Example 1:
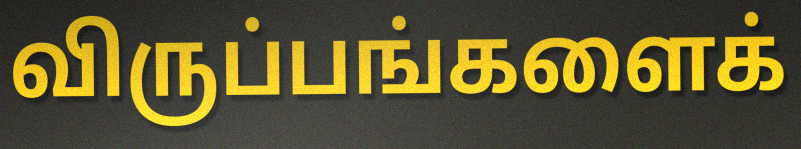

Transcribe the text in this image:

விருப்பங்களைக்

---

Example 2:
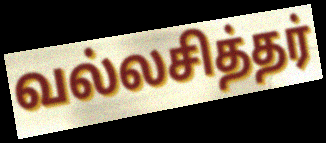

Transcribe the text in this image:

வல்லசித்தர்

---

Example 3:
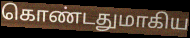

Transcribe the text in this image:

கொண்டதுமாகிய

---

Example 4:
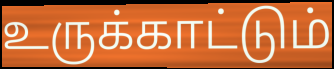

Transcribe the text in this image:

உருக்காட்டும்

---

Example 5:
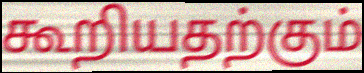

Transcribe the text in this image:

கூறியதற்கும்